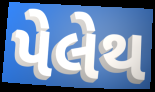
પેલેથ